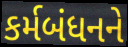
કર્મબંધનને